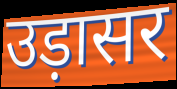
उड़ासर